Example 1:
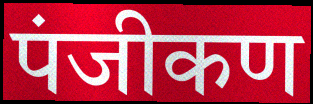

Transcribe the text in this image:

पंजीकण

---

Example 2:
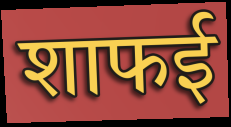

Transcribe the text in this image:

शाफई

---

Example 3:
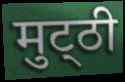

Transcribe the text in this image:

मुट्‌ठी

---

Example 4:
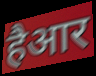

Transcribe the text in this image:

हैआर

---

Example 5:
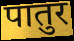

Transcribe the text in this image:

पातुर